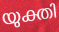
യുക്തി